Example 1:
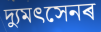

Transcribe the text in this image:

দ্যুমৎসেনৰ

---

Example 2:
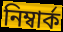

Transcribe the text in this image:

নিম্বাৰ্ক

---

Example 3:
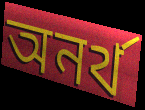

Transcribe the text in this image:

অনৰ্থ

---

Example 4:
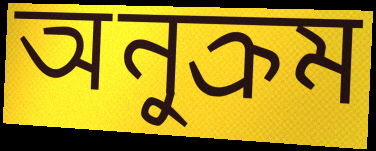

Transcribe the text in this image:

অনুক্ৰম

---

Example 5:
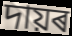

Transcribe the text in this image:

দায়ৰ